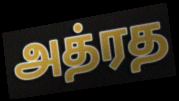
அத்ரத